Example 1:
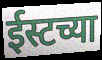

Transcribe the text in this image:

ईस्टच्या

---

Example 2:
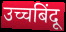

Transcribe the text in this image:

उच्चबिंदू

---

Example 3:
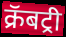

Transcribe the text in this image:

क्रॅबट्री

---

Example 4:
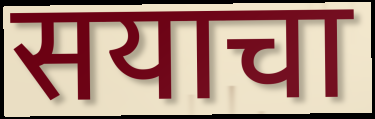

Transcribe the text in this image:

सयाचा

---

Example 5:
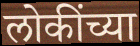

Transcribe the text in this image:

लोकींच्या